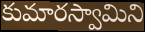
కుమారస్వామిని